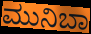
ಮುನಿಬಾ